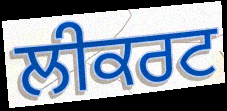
ਲੀਕਰਟ